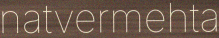
natvermehta